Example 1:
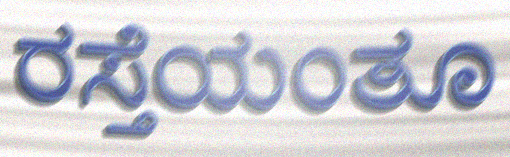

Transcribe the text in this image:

ರಸ್ತೆಯಂತೂ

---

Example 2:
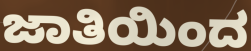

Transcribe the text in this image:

ಜಾತಿಯಿಂದ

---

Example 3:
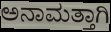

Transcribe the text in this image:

ಅನಾಮತ್ತಾಗಿ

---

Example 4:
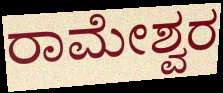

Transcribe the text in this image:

ರಾಮೇಶ್ವರ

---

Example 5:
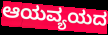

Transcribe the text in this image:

ಆಯವ್ಯಯದ